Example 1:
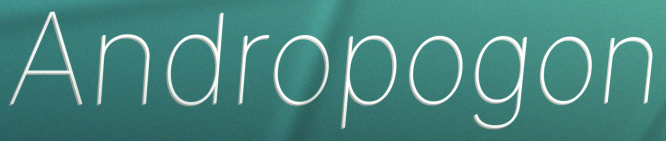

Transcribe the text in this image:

Andropogon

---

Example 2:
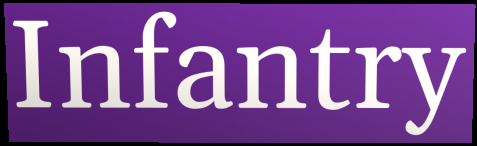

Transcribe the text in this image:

Infantry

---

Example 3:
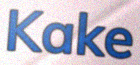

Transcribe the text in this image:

Kake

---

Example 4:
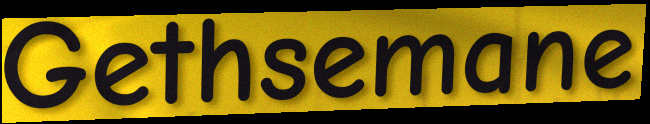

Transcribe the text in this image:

Gethsemane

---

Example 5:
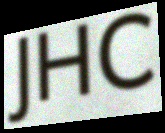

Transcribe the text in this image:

JHC